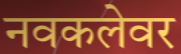
नवकलेवर